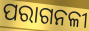
ପରାଗନଳୀ